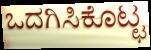
ಒದಗಿಸಿಕೊಟ್ಟ